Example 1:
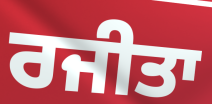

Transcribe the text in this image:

ਰਜੀਤਾ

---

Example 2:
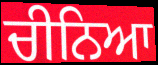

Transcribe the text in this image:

ਚੀਨਿਆ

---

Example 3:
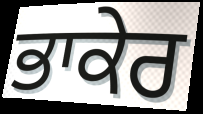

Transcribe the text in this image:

ਭਾਕੇਰ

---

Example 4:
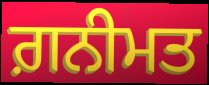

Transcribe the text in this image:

ਗ਼ਨੀਮਤ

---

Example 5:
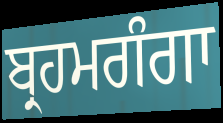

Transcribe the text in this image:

ਬ੍ਰਹਮਗੰਗਾ